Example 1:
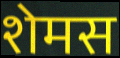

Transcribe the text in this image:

शेमस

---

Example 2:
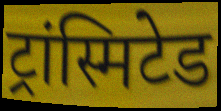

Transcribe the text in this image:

ट्रांस्मिटेड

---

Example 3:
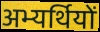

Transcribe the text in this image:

अभ्यर्थियों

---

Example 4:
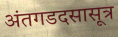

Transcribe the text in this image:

अंतगडदसासूत्र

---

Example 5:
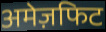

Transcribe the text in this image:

अमेज़फिट